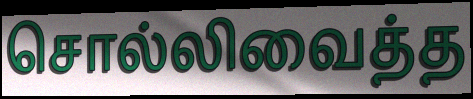
சொல்லிவைத்த